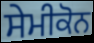
ਸੇਮੀਕੋਨ